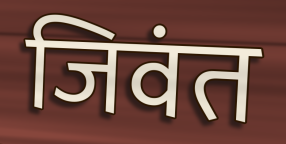
जिवंत